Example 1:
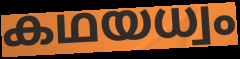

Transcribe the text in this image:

കഥയധ്വം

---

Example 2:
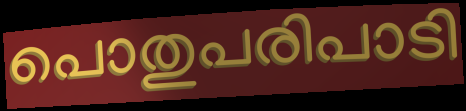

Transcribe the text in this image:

പൊതുപരിപാടി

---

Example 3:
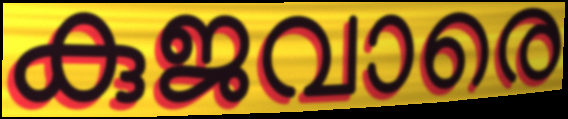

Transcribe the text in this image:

കുജവാരെ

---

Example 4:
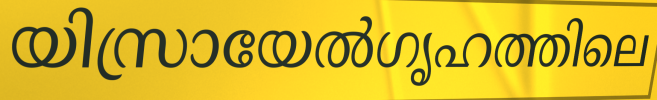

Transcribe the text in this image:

യിസ്രായേൽഗൃഹത്തിലെ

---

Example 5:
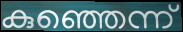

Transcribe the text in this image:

കുഞ്ഞെന്ന്